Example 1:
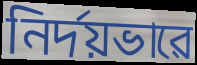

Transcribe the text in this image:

নিৰ্দয়ভাৱে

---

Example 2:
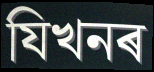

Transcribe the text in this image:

যিখনৰ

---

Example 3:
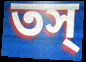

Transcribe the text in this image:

তস্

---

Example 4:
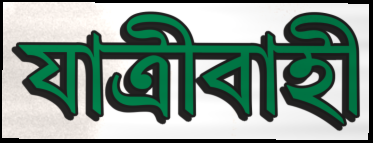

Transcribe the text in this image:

যাত্ৰীবাহী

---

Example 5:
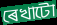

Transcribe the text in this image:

ৰেখাটো